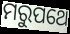
ମରୁପଥେ